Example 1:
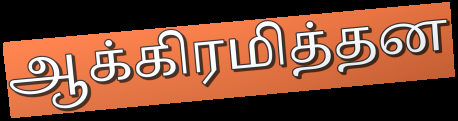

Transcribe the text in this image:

ஆக்கிரமித்தன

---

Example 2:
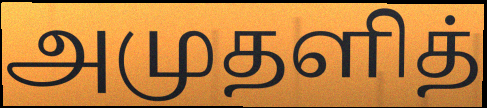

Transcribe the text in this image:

அமுதளித்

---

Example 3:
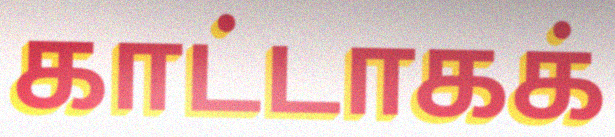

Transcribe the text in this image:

காட்டாகக்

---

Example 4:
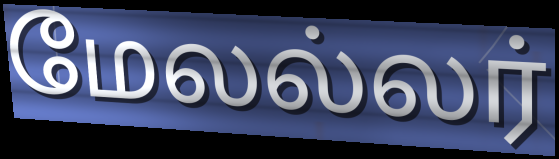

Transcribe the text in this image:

மேலல்லர்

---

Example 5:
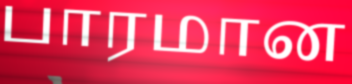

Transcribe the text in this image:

பாரமான